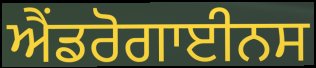
ਐਂਡਰੋਗਾਈਨਸ